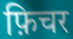
फ़िचर